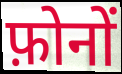
फ़ोनों